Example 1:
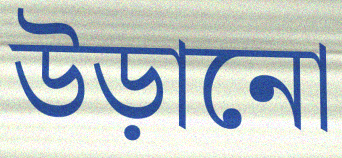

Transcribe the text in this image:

উড়ানো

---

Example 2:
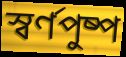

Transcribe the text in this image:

স্বর্ণপুষ্প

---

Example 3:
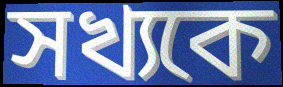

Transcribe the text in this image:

সখ্যকে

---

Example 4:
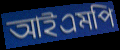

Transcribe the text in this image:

আইএমপি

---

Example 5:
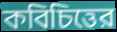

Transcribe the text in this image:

কবিচিত্তের